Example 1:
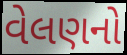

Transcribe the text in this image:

વેલણનો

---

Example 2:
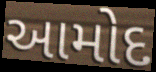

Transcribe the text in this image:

આમોદ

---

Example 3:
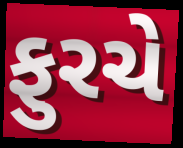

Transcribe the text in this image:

ફુરચે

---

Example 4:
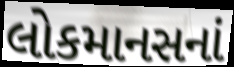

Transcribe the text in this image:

લોકમાનસનાં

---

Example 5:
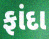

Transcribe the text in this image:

ફાંદા